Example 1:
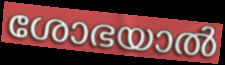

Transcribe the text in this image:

ശോഭയാൽ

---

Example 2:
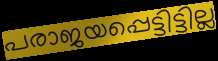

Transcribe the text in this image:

പരാജയപ്പെട്ടിട്ടില്ല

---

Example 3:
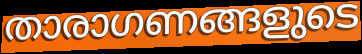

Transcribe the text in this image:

താരാഗണങ്ങളുടെ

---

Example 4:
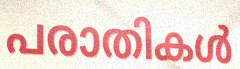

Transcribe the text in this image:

പരാതികൾ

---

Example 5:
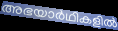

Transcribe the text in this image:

അഭയാർഥികളിൽ